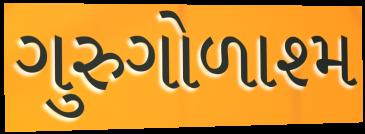
ગુરુગોળાશ્મ